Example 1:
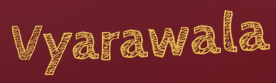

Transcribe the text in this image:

Vyarawala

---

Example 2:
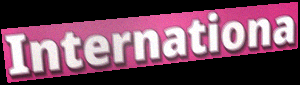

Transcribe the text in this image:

Internationa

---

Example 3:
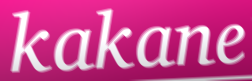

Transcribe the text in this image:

kakane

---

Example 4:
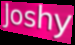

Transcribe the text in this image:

Joshy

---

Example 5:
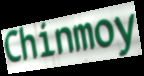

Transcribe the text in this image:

Chinmoy